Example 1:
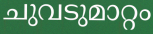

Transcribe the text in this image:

ചുവടുമാറ്റം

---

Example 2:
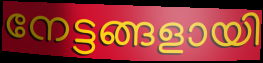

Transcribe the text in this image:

നേട്ടങ്ങളായി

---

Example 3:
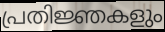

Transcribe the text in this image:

പ്രതിജ്ഞകളും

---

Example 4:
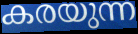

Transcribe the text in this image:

കരയുന്ന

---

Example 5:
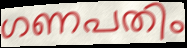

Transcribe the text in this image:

ഗണപതിം